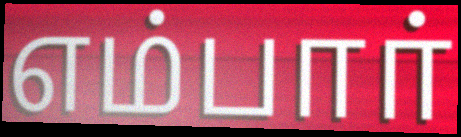
எம்பார்